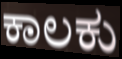
ಕಾಲಕು